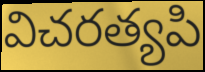
విచరత్యపి